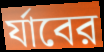
র্যাবের